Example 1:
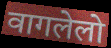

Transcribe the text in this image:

वागलेलो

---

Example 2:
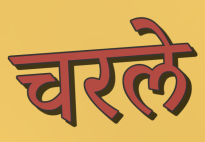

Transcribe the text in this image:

चरले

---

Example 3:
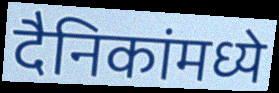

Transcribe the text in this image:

दैनिकांमध्ये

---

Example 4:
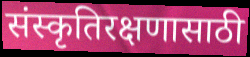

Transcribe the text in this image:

संस्कृतिरक्षणासाठी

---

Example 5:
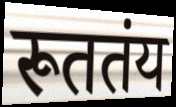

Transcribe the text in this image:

रूततंय